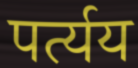
पर्त्यय